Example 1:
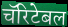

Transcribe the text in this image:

चॅरिटेबल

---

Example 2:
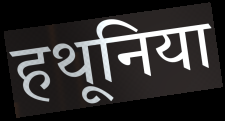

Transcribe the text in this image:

हथूनिया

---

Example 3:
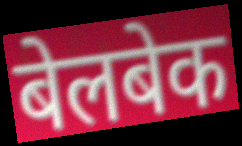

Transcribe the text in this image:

बेलबेक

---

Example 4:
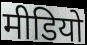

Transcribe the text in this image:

मीडियो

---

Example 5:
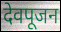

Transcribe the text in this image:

देवपूजन